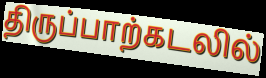
திருப்பாற்கடலில்